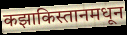
कझाकिस्तानमधून